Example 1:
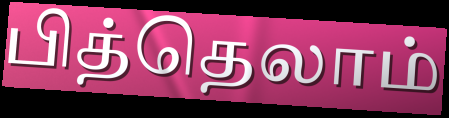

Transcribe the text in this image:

பித்தெலாம்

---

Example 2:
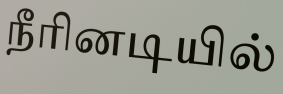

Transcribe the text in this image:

நீரினடியில்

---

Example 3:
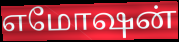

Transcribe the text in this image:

எமோஷன்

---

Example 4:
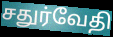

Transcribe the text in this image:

சதுர்வேதி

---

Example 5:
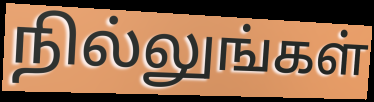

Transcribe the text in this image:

நில்லுங்கள்